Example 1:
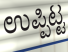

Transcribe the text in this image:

ಉಪ್ಪಿಟ್ಟ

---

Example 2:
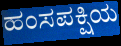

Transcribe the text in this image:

ಹಂಸಪಕ್ಷಿಯ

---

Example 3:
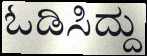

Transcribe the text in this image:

ಓಡಿಸಿದ್ದು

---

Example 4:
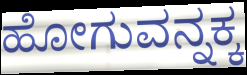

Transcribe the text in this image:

ಹೋಗುವನ್ನಕ್ಕ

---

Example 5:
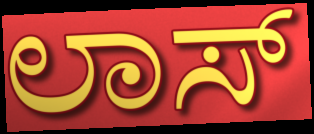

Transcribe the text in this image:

ಲಾಸ್